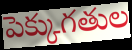
పెక్కుగతుల